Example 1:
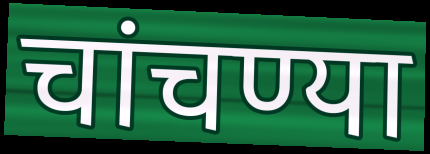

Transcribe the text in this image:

चांचण्या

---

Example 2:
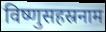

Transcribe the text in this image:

विष्णुसहस्रनाम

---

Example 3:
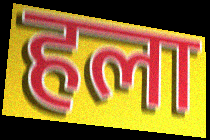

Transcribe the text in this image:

हला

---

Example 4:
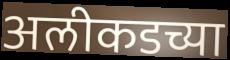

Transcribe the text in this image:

अलीकडच्या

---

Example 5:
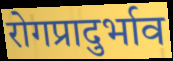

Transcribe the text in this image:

रोगप्रादुर्भाव